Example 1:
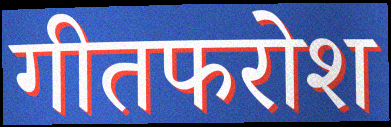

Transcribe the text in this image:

गीतफरोश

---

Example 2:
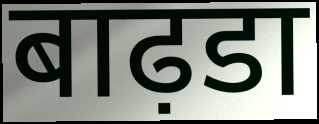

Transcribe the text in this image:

बाढ़डा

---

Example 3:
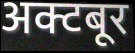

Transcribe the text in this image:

अक्टबूर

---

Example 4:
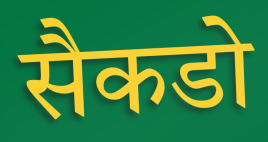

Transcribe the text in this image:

सैकडो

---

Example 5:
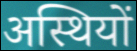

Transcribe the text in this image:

अस्थियों